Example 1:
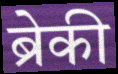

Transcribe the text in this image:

ब्रेकी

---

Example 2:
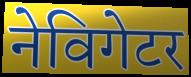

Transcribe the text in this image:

नेविगेटर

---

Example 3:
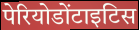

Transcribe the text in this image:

पेरियोडोंटाइटिस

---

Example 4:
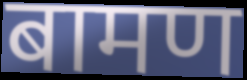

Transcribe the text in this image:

बामण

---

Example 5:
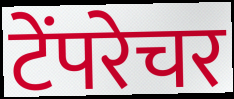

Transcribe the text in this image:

टेंपरेचर